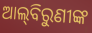
ଆଲ୍‌ବିରୁଣୀଙ୍କ